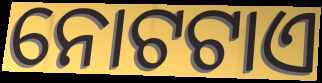
ନୋଟଟାଏ